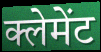
क्लेमेंट